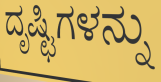
ದೃಷ್ಟಿಗಳನ್ನು